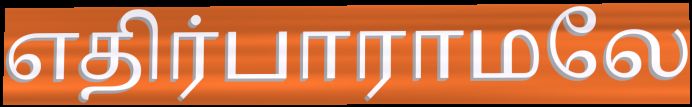
எதிர்பாராமலே